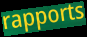
rapports